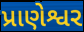
પ્રાણેશ્વર